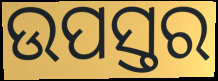
ଉପସ୍ତର